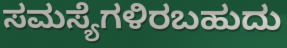
ಸಮಸ್ಯೆಗಳಿರಬಹುದು